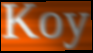
Koy